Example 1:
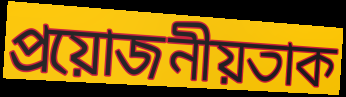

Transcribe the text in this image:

প্ৰয়োজনীয়তাক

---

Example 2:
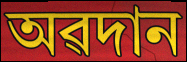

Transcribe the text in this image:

অৱদান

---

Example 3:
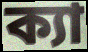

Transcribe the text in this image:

ক্যা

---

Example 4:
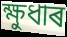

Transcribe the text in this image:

ক্ষুধাৰ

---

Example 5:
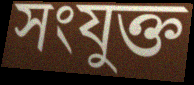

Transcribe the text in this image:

সংযুক্ত